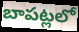
బాపట్లలో